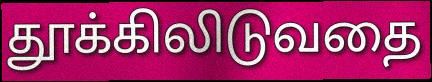
தூக்கிலிடுவதை